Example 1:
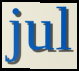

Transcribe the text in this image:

jul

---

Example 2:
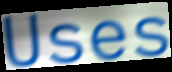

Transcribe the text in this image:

Uses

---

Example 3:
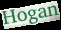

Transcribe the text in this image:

Hogan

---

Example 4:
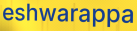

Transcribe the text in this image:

eshwarappa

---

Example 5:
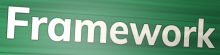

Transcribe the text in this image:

Framework